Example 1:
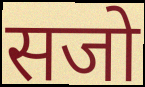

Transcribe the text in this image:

सजो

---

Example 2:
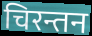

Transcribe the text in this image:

चिरन्तन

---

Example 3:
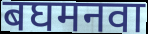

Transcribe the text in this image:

बघमनवा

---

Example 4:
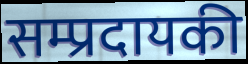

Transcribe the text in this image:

सम्प्रदायकी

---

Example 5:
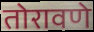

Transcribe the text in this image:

तोरावणे